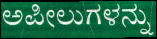
ಅಪೀಲುಗಳನ್ನು